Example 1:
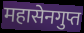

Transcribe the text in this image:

महासेनगुप्त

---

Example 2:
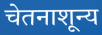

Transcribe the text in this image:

चेतनाशून्य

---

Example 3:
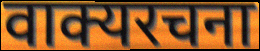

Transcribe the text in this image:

वाक्यरचना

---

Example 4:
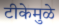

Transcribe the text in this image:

टीकेमुळे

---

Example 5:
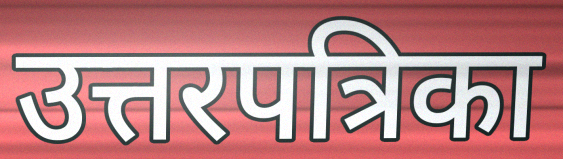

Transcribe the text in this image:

उत्तरपत्रिका